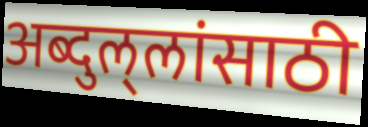
अब्दुल्लांसाठी